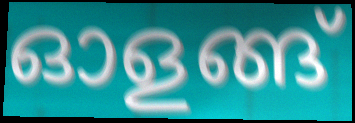
ഓളങ്ങ്